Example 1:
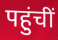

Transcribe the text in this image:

पहुंचीं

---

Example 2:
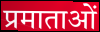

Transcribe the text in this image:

प्रमाताओं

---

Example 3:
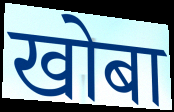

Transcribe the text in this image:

खोबा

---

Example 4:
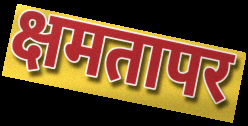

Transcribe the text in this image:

क्षमतापर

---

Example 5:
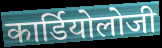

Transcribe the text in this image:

कार्डियोलोजी